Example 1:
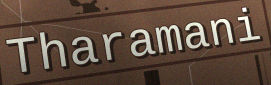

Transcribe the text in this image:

Tharamani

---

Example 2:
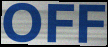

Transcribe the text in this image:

OFF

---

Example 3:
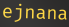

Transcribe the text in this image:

ejnana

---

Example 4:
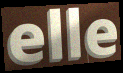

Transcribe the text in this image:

elle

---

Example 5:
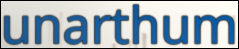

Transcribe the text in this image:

unarthum